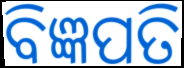
ବିଜ୍ଞପତି